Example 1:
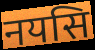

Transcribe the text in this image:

नयसि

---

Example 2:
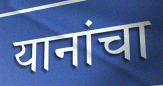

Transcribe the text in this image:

यानांचा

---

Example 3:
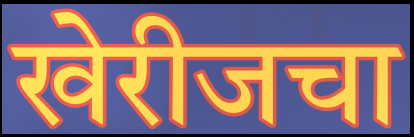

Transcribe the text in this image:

खेरीजचा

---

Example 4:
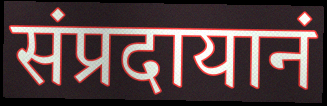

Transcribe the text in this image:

संप्रदायानं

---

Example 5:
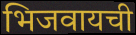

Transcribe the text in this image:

भिजवायची